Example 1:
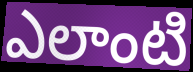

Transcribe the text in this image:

ఎలాంటి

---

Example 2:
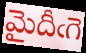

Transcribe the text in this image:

మైదీఁగె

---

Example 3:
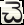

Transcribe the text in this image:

చె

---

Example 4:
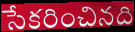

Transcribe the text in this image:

సేకరించినది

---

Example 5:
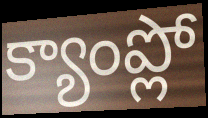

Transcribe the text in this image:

క్యాంప్లో